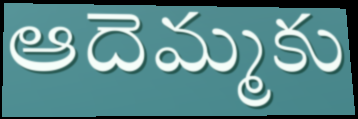
ఆదెమ్మకు